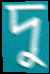
দু